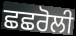
ਛਛਰੋਲੀ